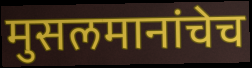
मुसलमानांचेच